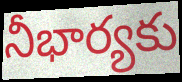
నీభార్యకు